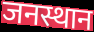
जनस्थान